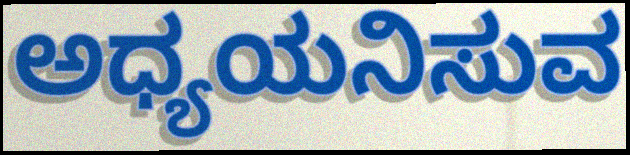
ಅಧ್ಯಯನಿಸುವ